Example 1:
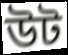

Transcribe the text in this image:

উট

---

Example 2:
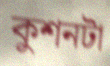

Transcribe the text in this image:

কুশনটা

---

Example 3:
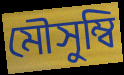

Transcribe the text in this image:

মৌসুম্বি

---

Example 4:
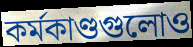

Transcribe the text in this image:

কর্মকাণ্ডগুলোও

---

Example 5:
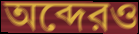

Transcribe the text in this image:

অব্দেরও